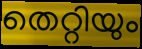
തെറ്റിയും